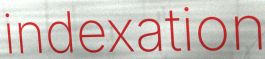
indexation